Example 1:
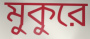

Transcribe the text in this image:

মুকুরে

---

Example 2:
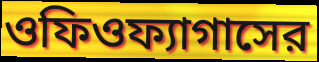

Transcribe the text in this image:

ওফিওফ্যাগাসের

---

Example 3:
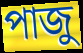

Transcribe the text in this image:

পাজু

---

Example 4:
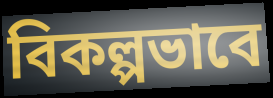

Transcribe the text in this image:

বিকল্পভাবে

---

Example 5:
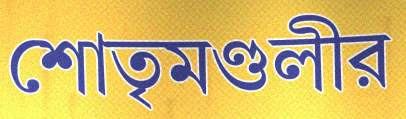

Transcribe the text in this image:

শোতৃমণ্ডলীর